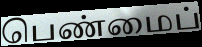
பெண்மைப்